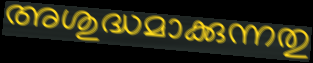
അശുദ്ധമാക്കുന്നതു